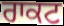
ਰਾਕਟ